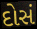
દોસં